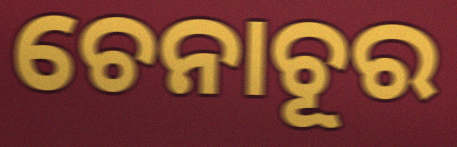
ଚେନାଚୂର